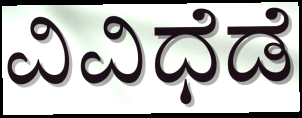
ವಿವಿಧೆಡೆ